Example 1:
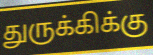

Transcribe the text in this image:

துருக்கிக்கு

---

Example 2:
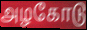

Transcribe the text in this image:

அழகோடு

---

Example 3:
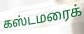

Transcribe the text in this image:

கஸ்டமரைக்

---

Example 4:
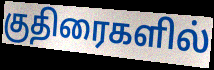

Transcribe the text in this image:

குதிரைகளில்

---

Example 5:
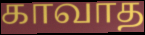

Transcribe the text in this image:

காவாத